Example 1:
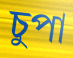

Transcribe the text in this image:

চুপা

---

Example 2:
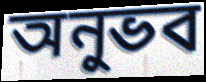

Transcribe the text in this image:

অনুভব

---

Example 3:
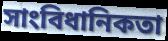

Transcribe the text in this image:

সাংবিধানিকতা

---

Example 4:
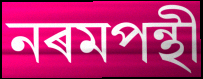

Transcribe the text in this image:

নৰমপন্থী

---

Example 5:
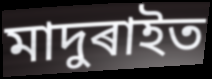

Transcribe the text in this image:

মাদুৰাইত